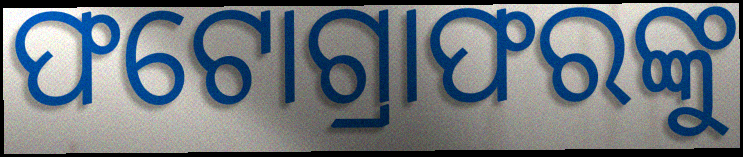
ଫଟୋଗ୍ରାଫରଙ୍କୁ